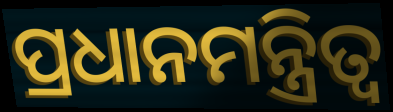
ପ୍ରଧାନମନ୍ତ୍ରିତ୍ଵ